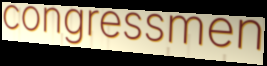
congressmen